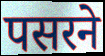
पसरने